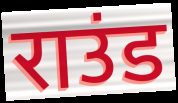
राउंड